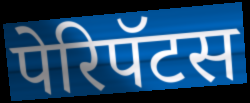
पेरिपॅटस